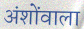
अंशोंवाला